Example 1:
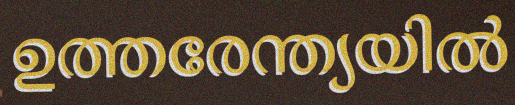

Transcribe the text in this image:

ഉത്തരേന്ത്യയിൽ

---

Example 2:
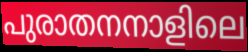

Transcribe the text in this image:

പുരാതനനാളിലെ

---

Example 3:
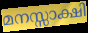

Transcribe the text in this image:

മനസ്സാക്ഷി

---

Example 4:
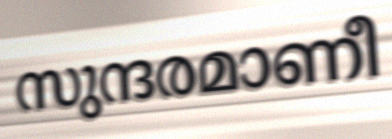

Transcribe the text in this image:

സുന്ദരമാണീ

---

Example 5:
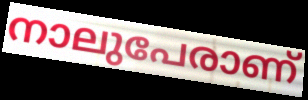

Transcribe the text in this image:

നാലുപേരാണ്